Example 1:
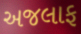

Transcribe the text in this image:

અજલાફ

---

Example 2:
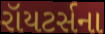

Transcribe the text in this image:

રૉયટર્સના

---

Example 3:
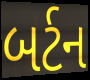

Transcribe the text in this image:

બર્ટન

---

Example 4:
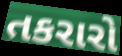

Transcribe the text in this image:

તકરારો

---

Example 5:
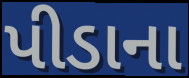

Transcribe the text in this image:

પીડાના